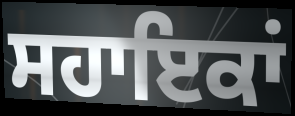
ਸਹਾਇਕਾਂ